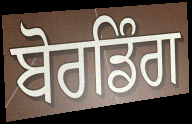
ਬੋਰਡਿੰਗ